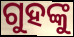
ଗୁହଙ୍କୁ